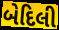
બેદિલી